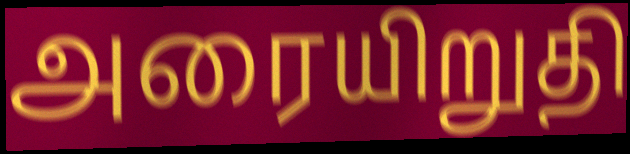
அரையிறுதி